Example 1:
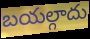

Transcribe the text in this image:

బయల్గాదు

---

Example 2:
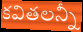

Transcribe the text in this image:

కవితలన్నీ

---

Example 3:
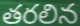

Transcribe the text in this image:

తరలిన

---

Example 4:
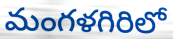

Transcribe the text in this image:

మంగళగిరిలో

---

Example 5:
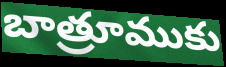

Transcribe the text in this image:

బాత్రూముకు